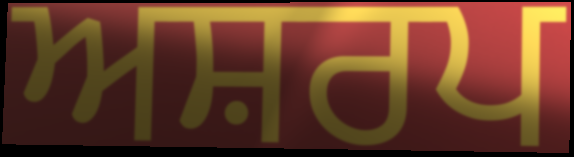
ਅਸ਼ਰਪ